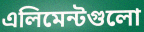
এলিমেন্টগুলো